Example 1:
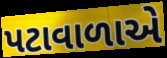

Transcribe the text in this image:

પટાવાળાએ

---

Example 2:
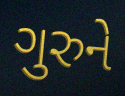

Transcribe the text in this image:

ગુરુને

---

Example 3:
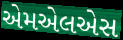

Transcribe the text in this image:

એમએલએસ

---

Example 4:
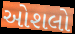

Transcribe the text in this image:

ઓશલો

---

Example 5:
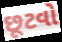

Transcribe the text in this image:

છૂટવો